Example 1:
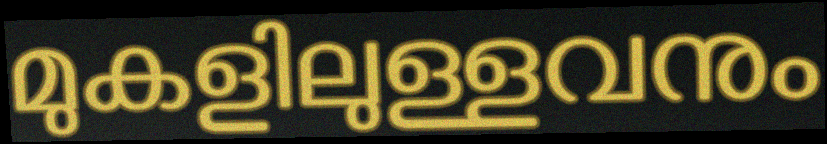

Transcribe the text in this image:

മുകളിലുള്ളവനും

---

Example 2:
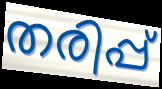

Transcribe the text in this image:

തരിപ്പ്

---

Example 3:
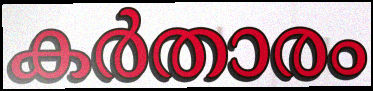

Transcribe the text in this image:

കർതാരം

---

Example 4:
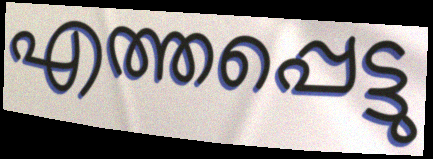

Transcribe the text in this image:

എത്തപ്പെട്ടു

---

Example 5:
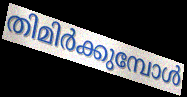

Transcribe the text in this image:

തിമിർക്കുമ്പോൾ